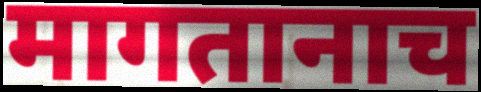
मागतानाच